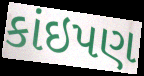
કાંઇપણ